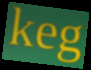
keg